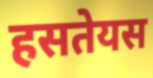
हसतेयस